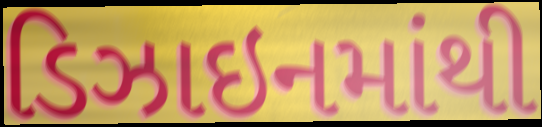
ડિઝાઇનમાંથી